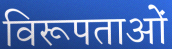
विरूपताओं